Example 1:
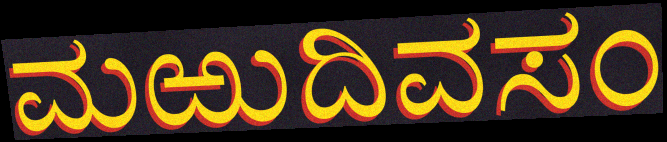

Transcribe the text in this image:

ಮಱುದಿವಸಂ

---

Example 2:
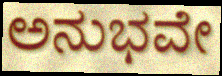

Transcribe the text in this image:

ಅನುಭವೇ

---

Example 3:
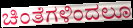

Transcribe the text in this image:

ಚಿಂತೆಗಳಿಂದಲೂ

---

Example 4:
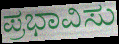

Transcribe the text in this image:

ಪ್ರಭಾವಿಸು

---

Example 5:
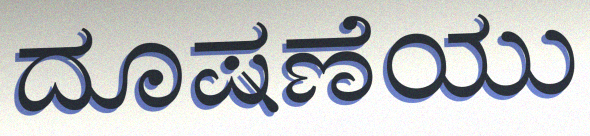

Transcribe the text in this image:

ದೂಷಣೆಯು